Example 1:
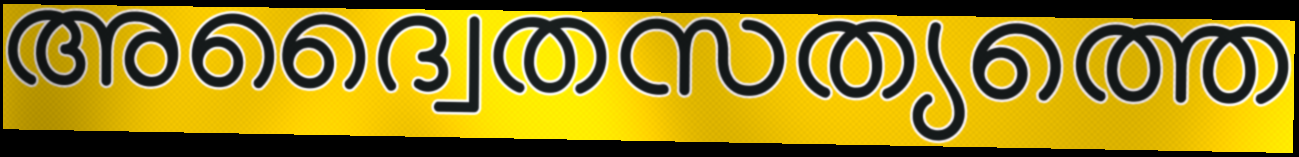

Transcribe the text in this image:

അദ്വൈതസത്യത്തെ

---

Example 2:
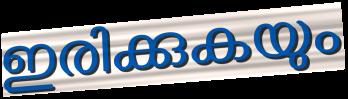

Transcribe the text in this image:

ഇരിക്കുകയും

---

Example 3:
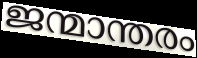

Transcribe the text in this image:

ജന്മാന്തരം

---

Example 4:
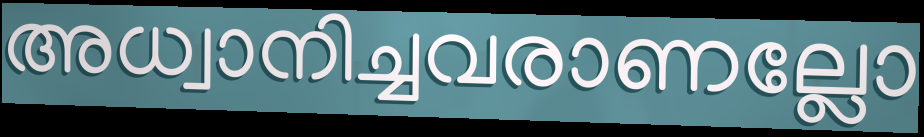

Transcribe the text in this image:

അധ്വാനിച്ചവരാണല്ലോ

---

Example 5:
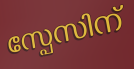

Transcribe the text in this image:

സ്പേസിന്